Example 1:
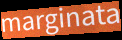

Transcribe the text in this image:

marginata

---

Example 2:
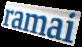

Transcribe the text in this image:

ramai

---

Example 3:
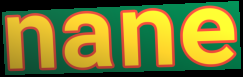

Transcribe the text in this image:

nane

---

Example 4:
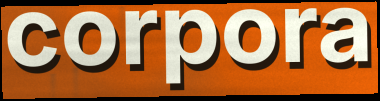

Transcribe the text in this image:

corpora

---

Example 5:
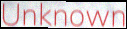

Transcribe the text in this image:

Unknown